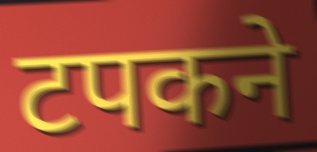
टपकने